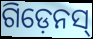
ଗିଡ଼େନସ୍